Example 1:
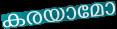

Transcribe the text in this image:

കരയാമോ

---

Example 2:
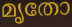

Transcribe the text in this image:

മൃതോ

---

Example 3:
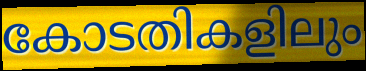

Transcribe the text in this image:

കോടതികളിലും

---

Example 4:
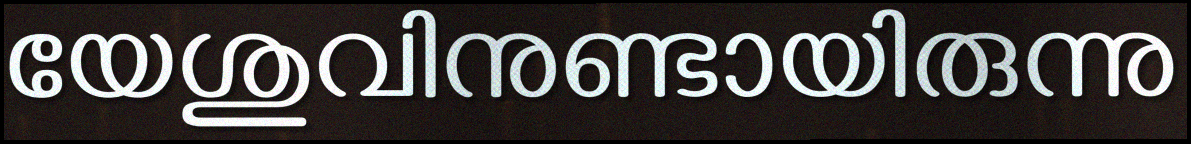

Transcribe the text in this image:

യേശുവിനുണ്ടായിരുന്നു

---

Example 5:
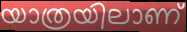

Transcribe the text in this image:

യാത്രയിലാണ്